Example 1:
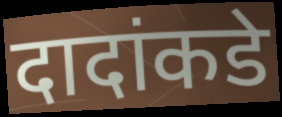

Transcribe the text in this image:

दादांकडे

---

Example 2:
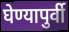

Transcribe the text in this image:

घेण्यापुर्वी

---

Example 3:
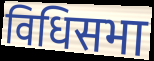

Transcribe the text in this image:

विधिसभा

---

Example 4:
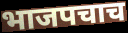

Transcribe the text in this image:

भाजपचाच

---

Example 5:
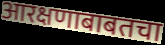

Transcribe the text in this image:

आरक्षणाबाबतचा